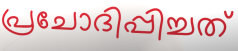
പ്രചോദിപ്പിച്ചത്